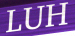
LUH